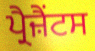
ਪ੍ਰੈਜ਼ੈਂਟਸ